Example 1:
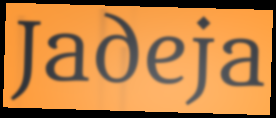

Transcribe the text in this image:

Jadeja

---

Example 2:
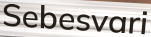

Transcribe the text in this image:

Sebesvari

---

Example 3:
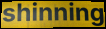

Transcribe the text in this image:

shinning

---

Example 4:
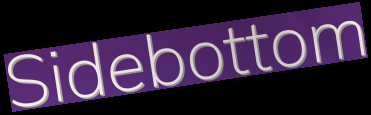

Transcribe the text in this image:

Sidebottom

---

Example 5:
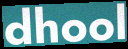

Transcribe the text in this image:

dhool